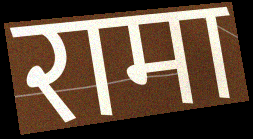
रामा